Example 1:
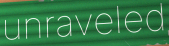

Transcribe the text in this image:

unraveled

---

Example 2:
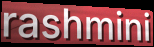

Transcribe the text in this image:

rashmini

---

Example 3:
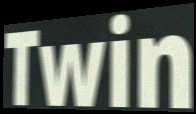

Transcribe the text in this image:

Twin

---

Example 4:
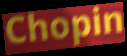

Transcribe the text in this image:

Chopin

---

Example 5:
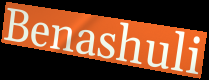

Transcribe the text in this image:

Benashuli